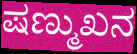
ಷಣ್ಮುಖನ